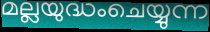
മല്ലയുദ്ധംചെയ്യുന്ന